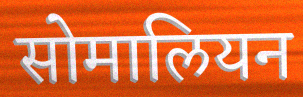
सोमालियन